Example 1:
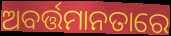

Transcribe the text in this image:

ଅବର୍ତ୍ତମାନତାରେ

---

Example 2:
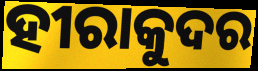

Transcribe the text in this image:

ହୀରାକୁଦର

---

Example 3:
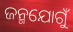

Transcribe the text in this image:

ଜନ୍ମଯୋଗୁଁ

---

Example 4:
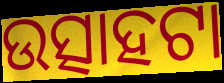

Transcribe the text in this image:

ଉତ୍ସାହଟା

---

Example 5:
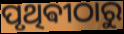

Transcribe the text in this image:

ପୃଥିଵୀଠାରୁ